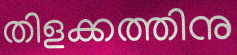
തിളക്കത്തിനു